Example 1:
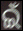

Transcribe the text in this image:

ଇଁ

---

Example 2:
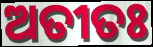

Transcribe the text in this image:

ଅତୀତଃ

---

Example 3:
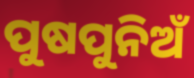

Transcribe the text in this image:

ପୁଷପୁନିଅଁ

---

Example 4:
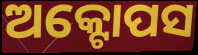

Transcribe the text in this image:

ଅକ୍ଟୋପସ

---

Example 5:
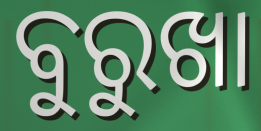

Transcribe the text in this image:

ବୁରୁଖା